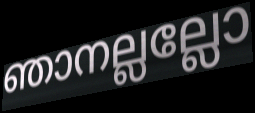
ഞാനല്ലല്ലോ